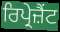
ਰਿਪ੍ਰੇਜ਼ੈਂਟ